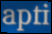
apti